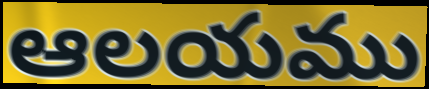
ఆలయము